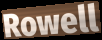
Rowell